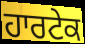
ਹਾਰਟੇਕ